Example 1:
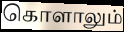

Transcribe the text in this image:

கொளாலும்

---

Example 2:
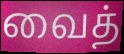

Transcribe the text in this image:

வைத்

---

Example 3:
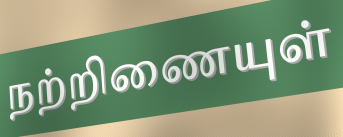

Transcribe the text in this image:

நற்றிணையுள்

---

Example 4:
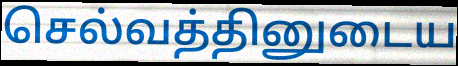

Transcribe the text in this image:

செல்வத்தினுடைய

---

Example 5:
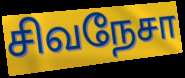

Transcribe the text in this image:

சிவநேசா